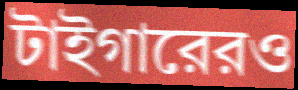
টাইগারেরও